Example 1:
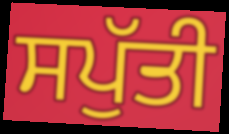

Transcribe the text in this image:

ਸਪੁੱਤੀ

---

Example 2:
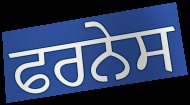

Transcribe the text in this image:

ਫਰਨੇਸ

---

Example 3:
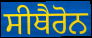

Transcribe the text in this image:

ਸੀਥੈਰੋਨ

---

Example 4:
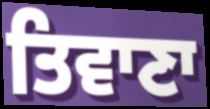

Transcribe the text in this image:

ਤਿਵਾਣਾ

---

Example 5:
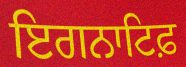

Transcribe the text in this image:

ਇਗਨਾਟਿਫ਼